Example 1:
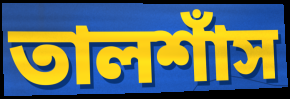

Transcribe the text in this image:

তালশাঁস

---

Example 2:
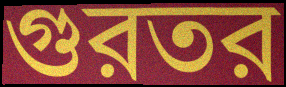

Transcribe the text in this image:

গুরতর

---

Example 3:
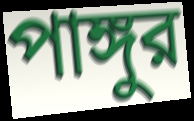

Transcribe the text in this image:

পাঙ্গুর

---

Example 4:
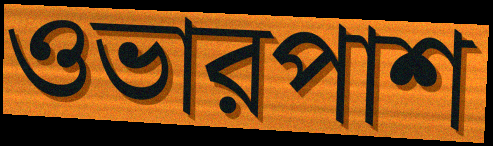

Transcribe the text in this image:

ওভারপাশ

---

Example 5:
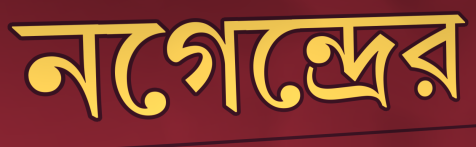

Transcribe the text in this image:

নগেন্দ্রের